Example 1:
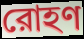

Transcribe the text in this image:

রোহণ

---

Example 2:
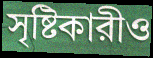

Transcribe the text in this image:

সৃষ্টিকারীও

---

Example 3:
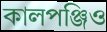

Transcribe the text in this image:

কালপঞ্জিও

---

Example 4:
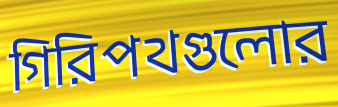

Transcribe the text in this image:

গিরিপথগুলোর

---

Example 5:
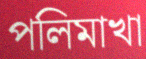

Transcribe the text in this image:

পলিমাখা